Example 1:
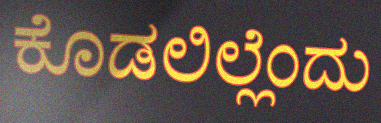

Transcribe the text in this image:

ಕೊಡಲಿಲ್ಲೆಂದು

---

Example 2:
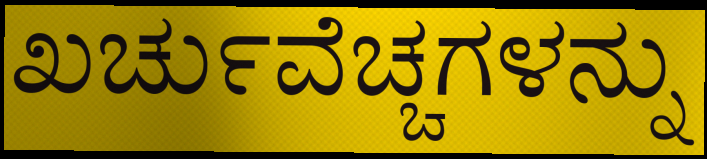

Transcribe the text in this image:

ಖರ್ಚುವೆಚ್ಚಗಳನ್ನು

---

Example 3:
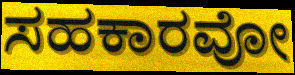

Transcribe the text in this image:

ಸಹಕಾರವೋ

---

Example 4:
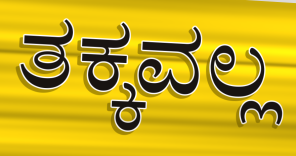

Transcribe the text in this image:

ತಕ್ಕವಲ್ಲ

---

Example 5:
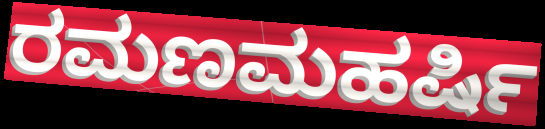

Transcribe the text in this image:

ರಮಣಮಹರ್ಷಿ